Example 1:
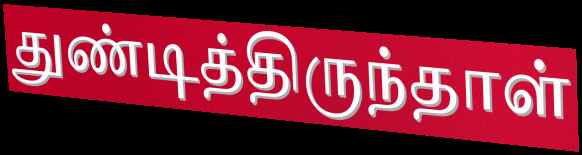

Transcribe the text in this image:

துண்டித்திருந்தாள்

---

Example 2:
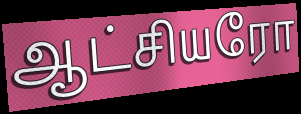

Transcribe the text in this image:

ஆட்சியரோ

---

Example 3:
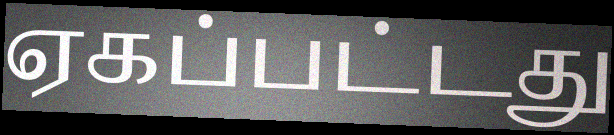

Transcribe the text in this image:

ஏகப்பட்டது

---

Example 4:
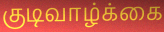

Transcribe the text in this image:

குடிவாழ்க்கை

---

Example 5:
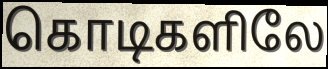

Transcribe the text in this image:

கொடிகளிலே